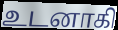
உடனாகி